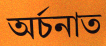
অৰ্চনাত